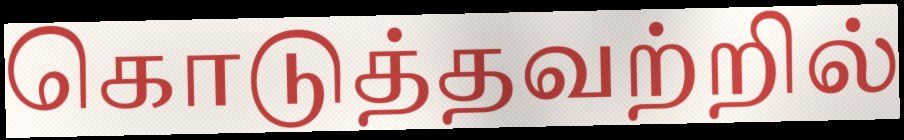
கொடுத்தவற்றில்